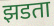
झडता